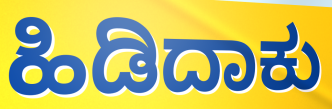
ಹಿಡಿದಾಕು